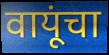
वायूंचा